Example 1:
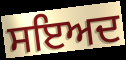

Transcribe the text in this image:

ਸਇਅਦ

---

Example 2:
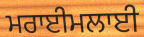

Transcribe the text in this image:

ਮਰਾਈਮਲਾਈ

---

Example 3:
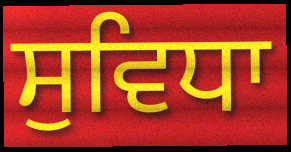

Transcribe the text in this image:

ਸੁਵਿਧਾ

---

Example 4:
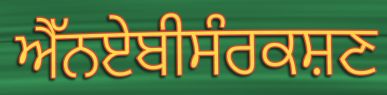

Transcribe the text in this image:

ਐੱਨਏਬੀਸੰਰਕਸ਼ਣ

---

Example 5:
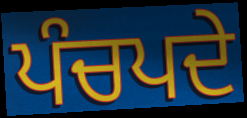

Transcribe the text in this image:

ਪੰਚਪਦੇ